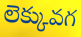
లెక్కువగ